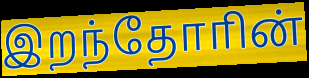
இறந்தோரின்